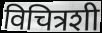
विचित्रशी